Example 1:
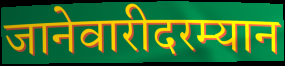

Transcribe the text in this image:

जानेवारीदरम्यान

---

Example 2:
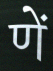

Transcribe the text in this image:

णें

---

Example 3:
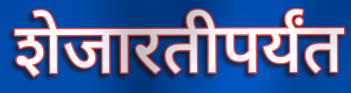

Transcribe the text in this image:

शेजारतीपर्यंत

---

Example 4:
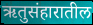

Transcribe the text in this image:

ऋतुसंहारातील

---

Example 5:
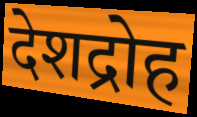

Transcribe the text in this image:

देशद्रोह